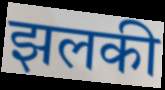
झलकी